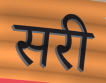
सरी